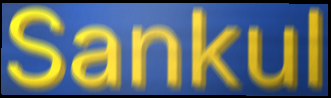
Sankul